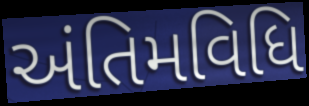
અંતિમવિધિ